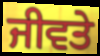
ਜੀਵਤੇ